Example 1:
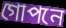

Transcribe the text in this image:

গোপনে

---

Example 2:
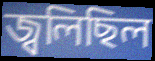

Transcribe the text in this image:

জ্বলিছিল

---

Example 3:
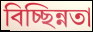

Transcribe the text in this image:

বিচ্ছিন্নতা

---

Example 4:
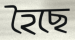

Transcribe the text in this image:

হৈছে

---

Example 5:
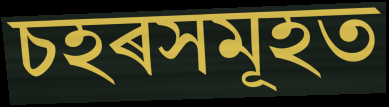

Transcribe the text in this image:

চহৰসমূহত